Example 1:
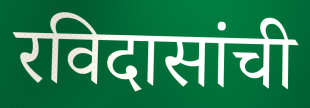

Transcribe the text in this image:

रविदासांची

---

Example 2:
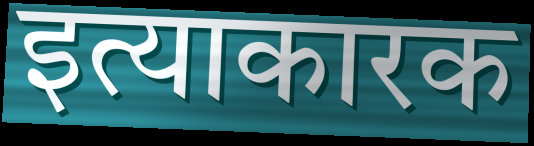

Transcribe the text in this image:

इत्याकारक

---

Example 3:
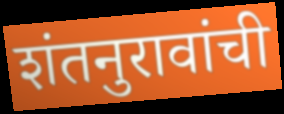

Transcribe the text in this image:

शंतनुरावांची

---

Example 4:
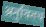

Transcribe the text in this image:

अनुचितच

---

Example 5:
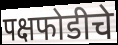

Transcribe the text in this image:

पक्षफोडीचे